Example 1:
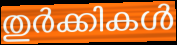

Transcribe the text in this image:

തുർക്കികൾ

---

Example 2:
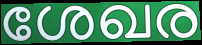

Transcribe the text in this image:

ശേഖര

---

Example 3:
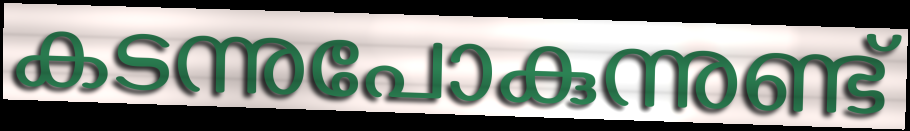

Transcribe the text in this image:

കടന്നുപോകുന്നുണ്ട്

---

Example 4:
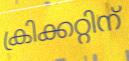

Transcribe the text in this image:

ക്രിക്കറ്റിന്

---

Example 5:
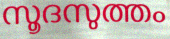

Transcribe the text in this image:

സൂദസുത്തം